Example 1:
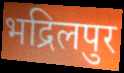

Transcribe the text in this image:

भद्रिलपुर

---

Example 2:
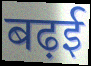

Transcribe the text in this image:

बढ़ई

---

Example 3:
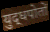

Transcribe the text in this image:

युद्धपोतों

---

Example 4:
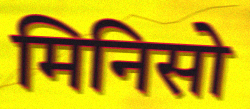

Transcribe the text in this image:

मिनिसो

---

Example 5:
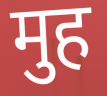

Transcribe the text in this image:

मुह